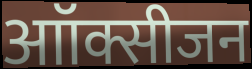
आॉक्सीजन